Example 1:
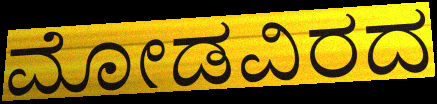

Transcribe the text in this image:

ಮೋಡವಿರದ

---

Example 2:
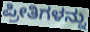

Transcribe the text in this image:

ಪ್ರೀತಿಗಳನ್ನು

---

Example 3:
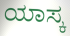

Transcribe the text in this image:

ಯಾಸ್ಕ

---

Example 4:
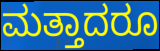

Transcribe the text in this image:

ಮತ್ತಾದರೂ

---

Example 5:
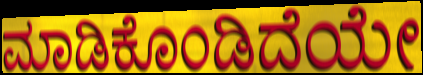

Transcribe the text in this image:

ಮಾಡಿಕೊಂಡಿದೆಯೇ